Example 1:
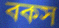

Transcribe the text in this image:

বকস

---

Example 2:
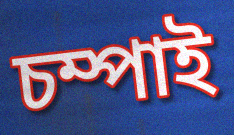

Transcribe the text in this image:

চম্পাই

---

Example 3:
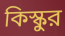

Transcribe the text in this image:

কিস্কুর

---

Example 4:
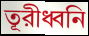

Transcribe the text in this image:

তূরীধ্বনি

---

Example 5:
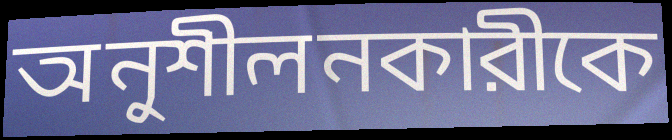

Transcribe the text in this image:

অনুশীলনকারীকে